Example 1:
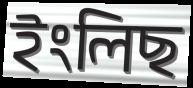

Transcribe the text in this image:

ইংলিছ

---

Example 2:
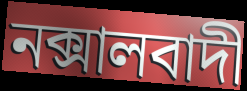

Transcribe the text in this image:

নক্সালবাদী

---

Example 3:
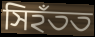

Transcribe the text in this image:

সিহঁতত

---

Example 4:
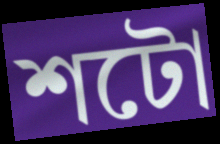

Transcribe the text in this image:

শটো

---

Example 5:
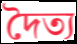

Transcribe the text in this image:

দৈত্য